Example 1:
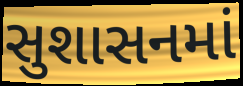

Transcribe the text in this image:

સુશાસનમાં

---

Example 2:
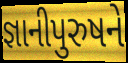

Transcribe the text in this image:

જ્ઞાનીપુરુષને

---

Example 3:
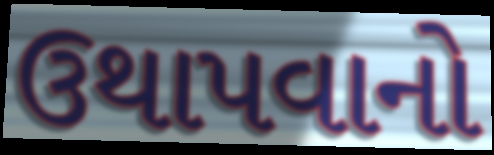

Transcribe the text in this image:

ઉથાપવાનો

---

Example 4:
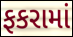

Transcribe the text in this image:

ફકરામાં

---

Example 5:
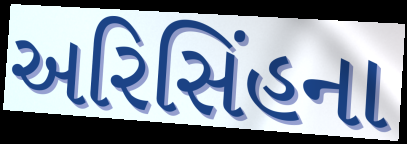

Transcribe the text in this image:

અરિસિંહના